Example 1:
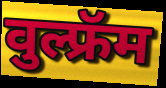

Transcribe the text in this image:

वुल्फ्रॅम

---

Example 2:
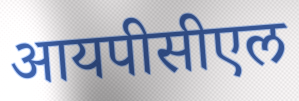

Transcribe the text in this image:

आयपीसीएल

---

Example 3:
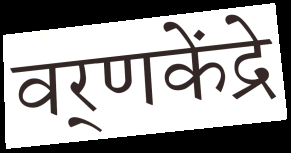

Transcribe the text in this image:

वर्णकेंद्रे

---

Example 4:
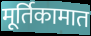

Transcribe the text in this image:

मूर्तिकामात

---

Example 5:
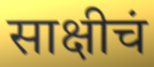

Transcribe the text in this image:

साक्षीचं